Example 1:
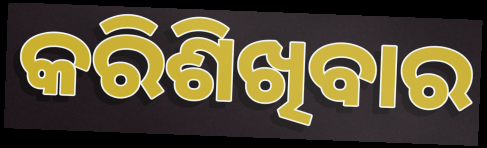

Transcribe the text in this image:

କରିଶିଖିବାର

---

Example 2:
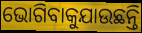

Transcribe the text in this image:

ଭୋଗିବାକୁଯାଉଛନ୍ତି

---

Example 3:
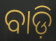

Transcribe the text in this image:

ବାଡ଼ି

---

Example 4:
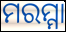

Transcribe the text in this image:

ମରମ୍ମା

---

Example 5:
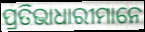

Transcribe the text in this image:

ପ୍ରତିଭାଧାରୀମାନେ